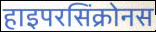
हाइपरसिंक्रोनस